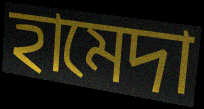
হামেদা